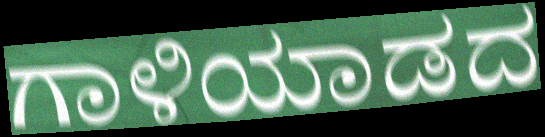
ಗಾಳಿಯಾಡದ